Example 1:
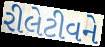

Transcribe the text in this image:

રીલેટીવને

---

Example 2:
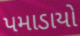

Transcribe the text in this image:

પમાડાયો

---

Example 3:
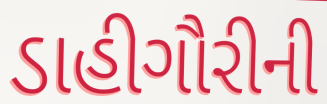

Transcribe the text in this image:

ડાહીગૌરીની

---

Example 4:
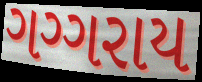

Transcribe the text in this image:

ગગ્ગરાય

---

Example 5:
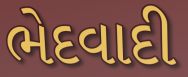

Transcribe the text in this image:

ભેદવાદી